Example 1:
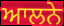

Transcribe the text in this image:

ਆਲਨੇ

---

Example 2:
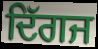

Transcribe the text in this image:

ਦਿੱਗਜ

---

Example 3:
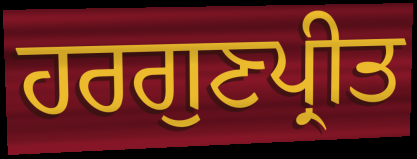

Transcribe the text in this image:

ਹਰਗੁਣਪ੍ਰੀਤ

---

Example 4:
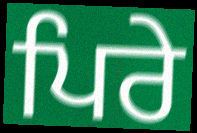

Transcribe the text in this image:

ਪਿਰੇ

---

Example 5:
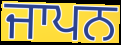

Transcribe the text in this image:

ਜਾਪਨ